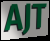
AJT